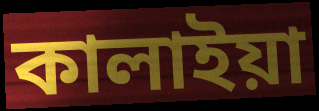
কালাইয়া